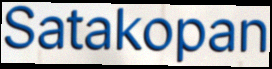
Satakopan